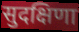
सुदक्षिणा